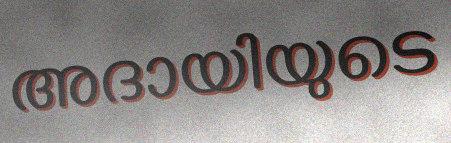
അദായിയുടെ